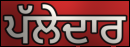
ਪੱਲੇਦਾਰ